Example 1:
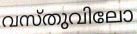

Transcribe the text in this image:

വസ്തുവിലോ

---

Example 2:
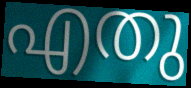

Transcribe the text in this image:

എതു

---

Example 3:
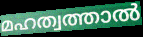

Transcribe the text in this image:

മഹത്വത്താൽ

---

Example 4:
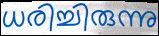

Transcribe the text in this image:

ധരിച്ചിരുന്നു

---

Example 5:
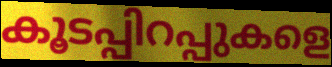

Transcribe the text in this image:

കൂടപ്പിറപ്പുകളെ